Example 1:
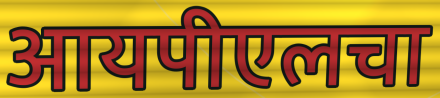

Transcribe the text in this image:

आयपीएलचा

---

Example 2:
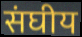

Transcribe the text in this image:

संघीय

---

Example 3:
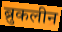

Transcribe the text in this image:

ब्रुकलीन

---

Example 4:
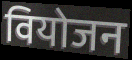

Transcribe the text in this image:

वियोजन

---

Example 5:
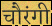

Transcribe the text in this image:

चौरंगी